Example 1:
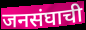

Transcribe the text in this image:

जनसंघाची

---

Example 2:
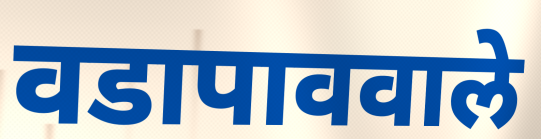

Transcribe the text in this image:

वडापाववाले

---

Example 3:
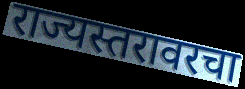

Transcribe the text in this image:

राज्यस्तरावरचा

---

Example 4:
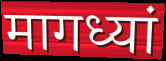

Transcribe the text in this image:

मागध्यां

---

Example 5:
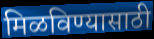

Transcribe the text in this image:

मिळविण्यासाठी